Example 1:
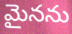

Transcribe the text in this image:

మైనను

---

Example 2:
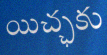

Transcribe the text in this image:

యిచ్ఛకు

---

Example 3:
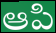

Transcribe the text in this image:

ఆపి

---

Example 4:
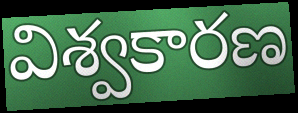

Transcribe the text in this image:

విశ్వకారణ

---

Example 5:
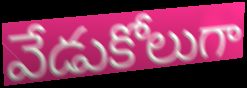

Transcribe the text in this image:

వేడుకోలుగా